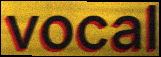
vocal